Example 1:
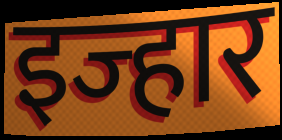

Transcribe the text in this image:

इज्हार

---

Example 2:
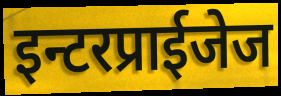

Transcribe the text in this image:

इन्टरप्राईजेज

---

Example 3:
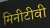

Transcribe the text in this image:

मिनीटीवी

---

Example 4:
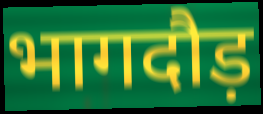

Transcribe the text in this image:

भागदौड़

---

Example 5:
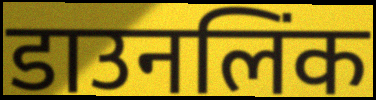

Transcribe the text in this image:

डाउनलिंक